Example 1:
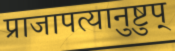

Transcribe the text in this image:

प्राजापत्यानुष्टुप्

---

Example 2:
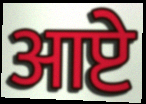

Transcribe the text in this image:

आप्टे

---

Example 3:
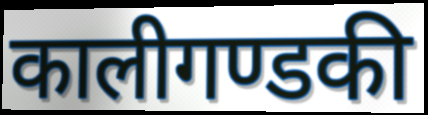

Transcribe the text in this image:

कालीगण्डकी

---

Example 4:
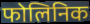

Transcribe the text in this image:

फोलिनिक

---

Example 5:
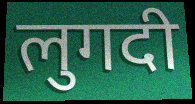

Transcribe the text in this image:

लुगदी